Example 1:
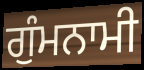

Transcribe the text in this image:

ਗੁੰਮਨਾਮੀ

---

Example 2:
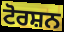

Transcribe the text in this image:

ਟੋਰਸ਼ਨ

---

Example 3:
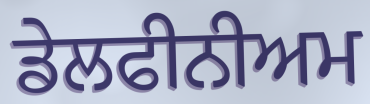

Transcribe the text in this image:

ਡੇਲਫੀਨੀਅਮ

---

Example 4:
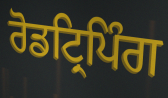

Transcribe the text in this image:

ਰੋਡਟ੍ਰਿਪਿੰਗ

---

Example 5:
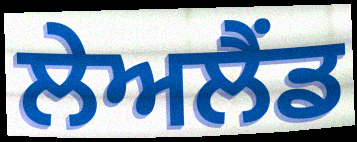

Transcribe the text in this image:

ਲੇਅਲੈਂਡ